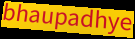
bhaupadhye